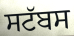
ਸਟੱਬਸ